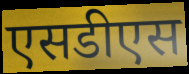
एसडीएस